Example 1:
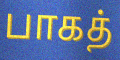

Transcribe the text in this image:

பாகத்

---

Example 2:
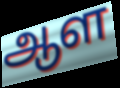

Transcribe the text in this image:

ஆள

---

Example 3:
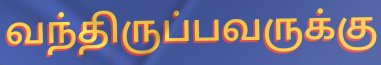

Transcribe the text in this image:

வந்திருப்பவருக்கு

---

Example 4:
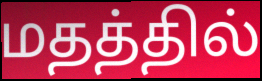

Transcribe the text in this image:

மதத்தில்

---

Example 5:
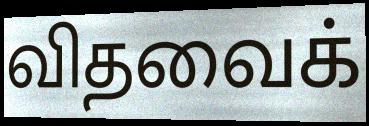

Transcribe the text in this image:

விதவைக்